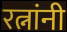
रत्नांनी